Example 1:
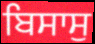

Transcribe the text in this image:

ਬਿਸਾਸੁ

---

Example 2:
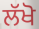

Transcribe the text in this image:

ਲੱਖੋ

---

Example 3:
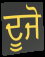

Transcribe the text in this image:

ਦੂਜੋ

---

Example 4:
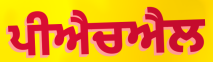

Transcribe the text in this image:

ਪੀਐਚਐਲ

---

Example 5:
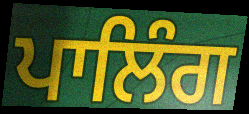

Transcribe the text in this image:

ਪਾਲਿੰਗ